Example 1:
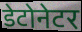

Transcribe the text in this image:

डेटोनेटर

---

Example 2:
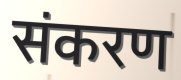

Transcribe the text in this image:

संकरण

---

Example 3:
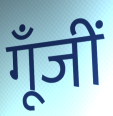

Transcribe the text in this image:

गूँजीं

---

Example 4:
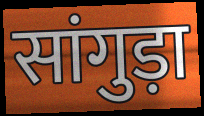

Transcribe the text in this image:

सांगुड़ा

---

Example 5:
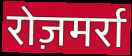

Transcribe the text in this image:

रोज़मर्रा